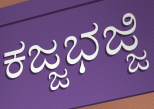
ಕಜ್ಜಭಜ್ಜಿ